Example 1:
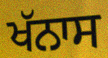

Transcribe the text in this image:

ਖੱਨਾਸ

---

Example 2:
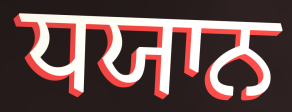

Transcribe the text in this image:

ਧਯਾਨ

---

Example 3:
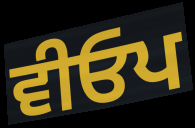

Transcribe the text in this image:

ਵੀਓਪ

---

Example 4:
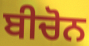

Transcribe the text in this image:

ਬੀਚੋਨ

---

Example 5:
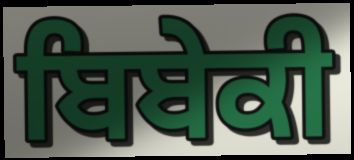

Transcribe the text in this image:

ਬਿਬੇਕੀ